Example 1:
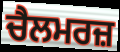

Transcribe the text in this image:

ਚੈਲਮਰਜ਼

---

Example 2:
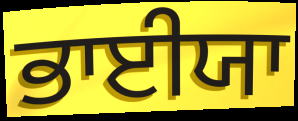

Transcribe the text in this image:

ਭਾਈਯਾ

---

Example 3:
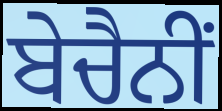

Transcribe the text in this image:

ਬੇਚੈਨੀਂ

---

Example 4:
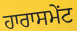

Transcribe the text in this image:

ਹਾਰਾਸਮੇਂਟ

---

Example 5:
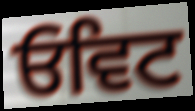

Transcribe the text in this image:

ਓਵਿਟ